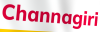
Channagiri